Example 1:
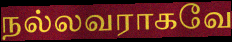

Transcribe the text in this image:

நல்லவராகவே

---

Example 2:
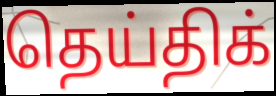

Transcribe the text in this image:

தெய்திக்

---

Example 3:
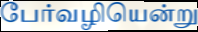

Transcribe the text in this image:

பேர்வழியென்று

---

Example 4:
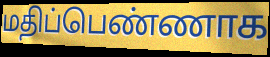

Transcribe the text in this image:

மதிப்பெண்ணாக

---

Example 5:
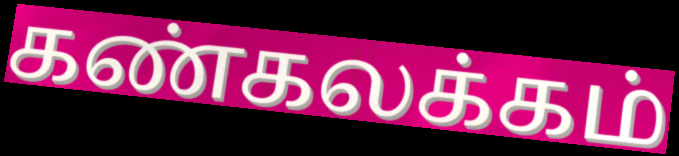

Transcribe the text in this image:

கண்கலக்கம்